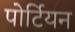
पोर्टियन